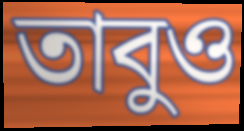
তাবুও